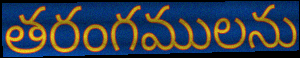
తరంగములను